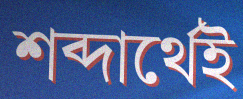
শব্দার্থেই